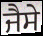
ਜੈਸੇ